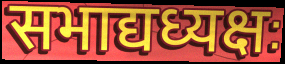
सभाद्यध्यक्षः